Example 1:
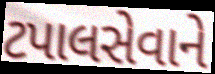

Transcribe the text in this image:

ટપાલસેવાને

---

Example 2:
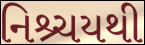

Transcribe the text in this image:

નિશ્ર્ચયથી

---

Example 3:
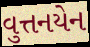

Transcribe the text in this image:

વુત્તનયેન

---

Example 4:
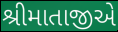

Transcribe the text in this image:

શ્રીમાતાજીએ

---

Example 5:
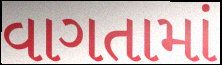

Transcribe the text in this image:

વાગતામાં